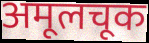
अमूलचूक